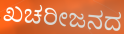
ಖಚರೀಜನದ